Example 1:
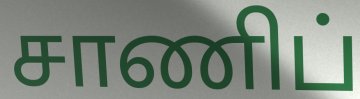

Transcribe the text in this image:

சாணிப்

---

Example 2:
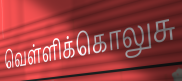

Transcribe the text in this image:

வெள்ளிக்கொலுசு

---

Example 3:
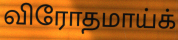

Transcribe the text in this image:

விரோதமாய்க்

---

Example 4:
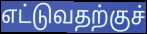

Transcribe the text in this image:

எட்டுவதற்குச்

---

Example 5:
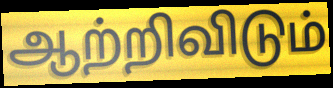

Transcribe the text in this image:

ஆற்றிவிடும்